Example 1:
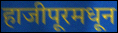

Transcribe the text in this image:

हाजीपूरमधून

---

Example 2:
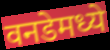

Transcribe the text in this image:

वनडेमध्ये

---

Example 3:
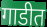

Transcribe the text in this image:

गाडीत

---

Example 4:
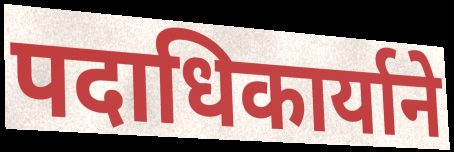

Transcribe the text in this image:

पदाधिकार्याने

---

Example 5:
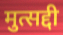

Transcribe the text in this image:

मुत्सद्दी